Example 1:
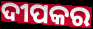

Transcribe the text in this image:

ଦୀପକର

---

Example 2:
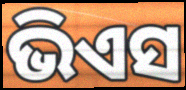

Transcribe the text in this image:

ଭିଏସ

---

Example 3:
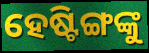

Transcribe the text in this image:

ହେଷ୍ଟିଙ୍ଗଙ୍କୁ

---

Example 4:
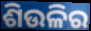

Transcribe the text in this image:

ଶିଉଳିର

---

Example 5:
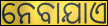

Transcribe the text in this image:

ନେବାଯାଏ